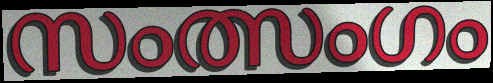
സംത്സംഗം